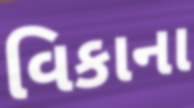
વિકાના